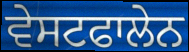
ਵੇਸਟਫਾਲੇਨ